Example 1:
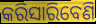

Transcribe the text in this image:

କରିସାରିବେଣି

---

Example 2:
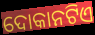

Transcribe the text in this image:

ଦୋକାନଟିଏ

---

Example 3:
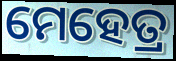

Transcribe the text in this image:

ମେହେତ୍ର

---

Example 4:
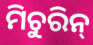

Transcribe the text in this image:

ମିଚୁରିନ୍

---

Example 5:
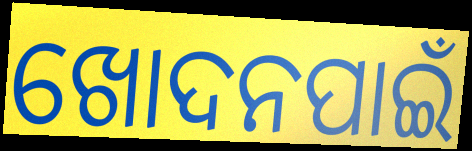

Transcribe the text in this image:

ଖୋଦନପାଇଁ